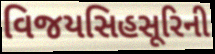
વિજયસિહસૂરિની